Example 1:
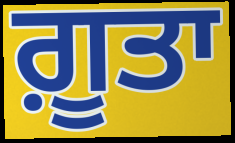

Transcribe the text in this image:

ਗ਼ੂਤਾ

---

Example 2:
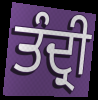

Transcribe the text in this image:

ਤੰਦ੍ਰੀ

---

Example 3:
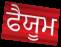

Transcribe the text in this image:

ਫੈਯੂਮ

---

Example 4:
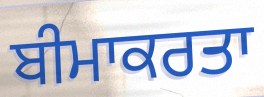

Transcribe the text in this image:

ਬੀਮਾਕਰਤਾ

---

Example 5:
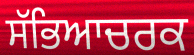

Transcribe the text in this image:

ਸੱਭਿਆਚਰਕ